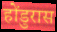
होंडुरास